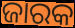
ଜାରକ